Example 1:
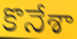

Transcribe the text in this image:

కొనేశా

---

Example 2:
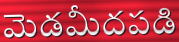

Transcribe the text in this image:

మెడమీదపడి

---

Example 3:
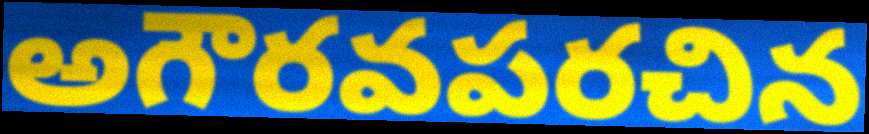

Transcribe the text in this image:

అగౌరవపరచిన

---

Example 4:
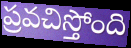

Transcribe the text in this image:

ప్రవచిస్తోంది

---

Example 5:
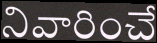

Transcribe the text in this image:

నివారించే